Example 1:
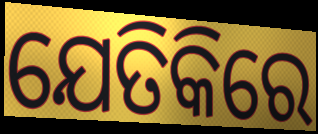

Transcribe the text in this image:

ଯେତିକିରେ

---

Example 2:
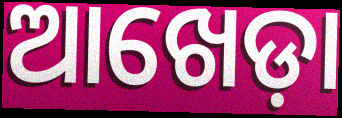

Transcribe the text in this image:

ଆଖେଡ଼ା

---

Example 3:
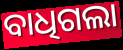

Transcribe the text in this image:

ବାଧିଗଲା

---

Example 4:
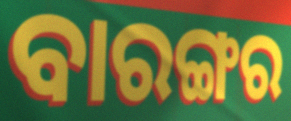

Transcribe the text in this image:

ବାରଙ୍ଗର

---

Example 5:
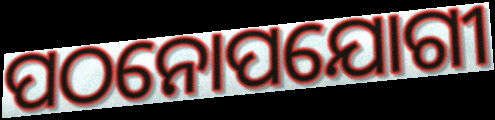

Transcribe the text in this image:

ପଠନୋପଯୋଗୀ